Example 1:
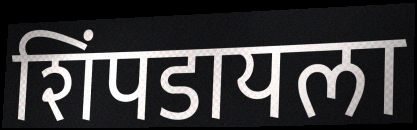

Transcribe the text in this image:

शिंपडायला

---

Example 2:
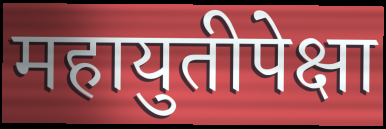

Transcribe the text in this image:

महायुतीपेक्षा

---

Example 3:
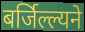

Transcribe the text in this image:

बर्जिल्ल्यने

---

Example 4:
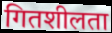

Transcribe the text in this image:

गितशीलता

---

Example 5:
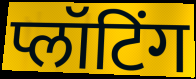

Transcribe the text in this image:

प्लॉटिंग